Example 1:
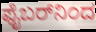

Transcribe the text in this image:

ಫೈಬರ್‌ನಿಂದ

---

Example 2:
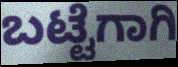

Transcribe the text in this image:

ಬಟ್ಟೆಗಾಗಿ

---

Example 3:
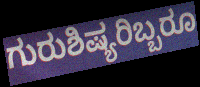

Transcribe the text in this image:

ಗುರುಶಿಷ್ಯರಿಬ್ಬರೂ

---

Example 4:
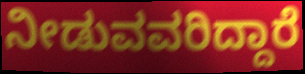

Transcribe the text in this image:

ನೀಡುವವರಿದ್ದಾರೆ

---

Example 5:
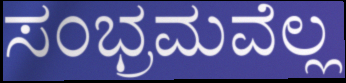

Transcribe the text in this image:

ಸಂಭ್ರಮವೆಲ್ಲ